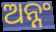
ଅନ୍ନଂ